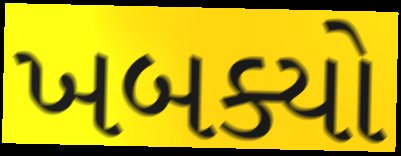
ખબક્યો